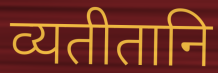
व्यतीतानि